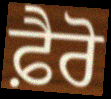
ਫ਼ੈਰੋ